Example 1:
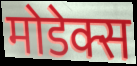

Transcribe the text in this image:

मोडेक्स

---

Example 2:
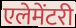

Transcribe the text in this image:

एलेमेंटरी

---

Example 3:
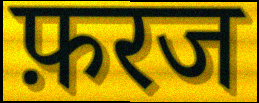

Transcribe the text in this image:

फ़रज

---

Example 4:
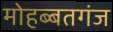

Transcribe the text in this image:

मोहब्बतगंज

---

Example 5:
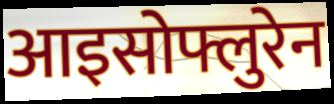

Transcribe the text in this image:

आइसोफ्लुरेन